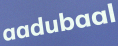
aadubaal